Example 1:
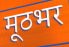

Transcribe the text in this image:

मूठभर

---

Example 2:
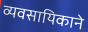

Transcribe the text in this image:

व्यवसायिकाने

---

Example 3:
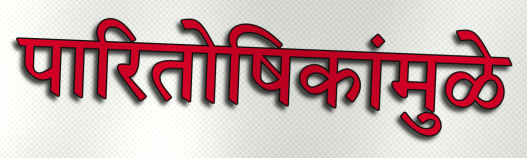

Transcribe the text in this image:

पारितोषिकांमुळे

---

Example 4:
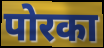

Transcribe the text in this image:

पोरका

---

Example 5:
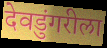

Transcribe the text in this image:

देवडुंगरीला